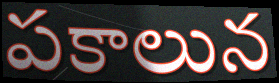
పకాలున